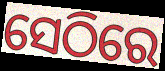
ସେଠିରେ